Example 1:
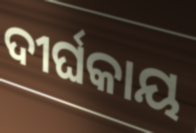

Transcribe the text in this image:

ଦୀର୍ଘକାୟ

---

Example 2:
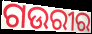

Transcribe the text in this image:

ଗଉରୀର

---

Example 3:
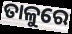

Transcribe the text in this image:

ତାଳୁରେ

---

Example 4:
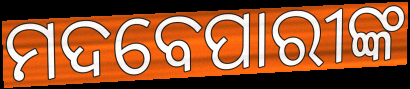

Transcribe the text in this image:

ମଦବେପାରୀଙ୍କ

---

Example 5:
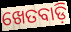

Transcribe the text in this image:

ଖେତବାଡ଼ି